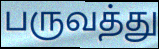
பருவத்து